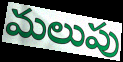
మలుపు